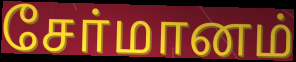
சேர்மானம்